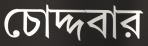
চোদ্দবার